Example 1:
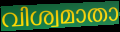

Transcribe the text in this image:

വിശ്വമാതാ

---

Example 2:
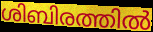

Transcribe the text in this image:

ശിബിരത്തിൽ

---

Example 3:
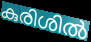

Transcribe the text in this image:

കുരിശിൽ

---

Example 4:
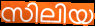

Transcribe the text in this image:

സിലിയ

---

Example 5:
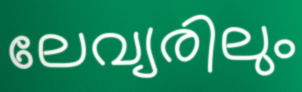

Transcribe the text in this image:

ലേവ്യരിലും